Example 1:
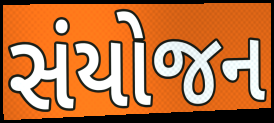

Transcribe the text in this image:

સંયોજન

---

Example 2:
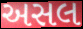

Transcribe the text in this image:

અસલ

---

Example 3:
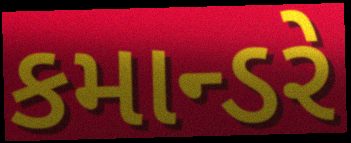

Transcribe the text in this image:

કમાન્ડરે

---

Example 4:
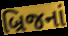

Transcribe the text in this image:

બ્રિજનાં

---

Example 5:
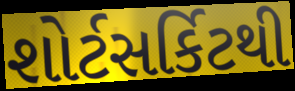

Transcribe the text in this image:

શોર્ટસર્કિટથી